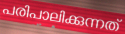
പരിപാലിക്കുന്നത്